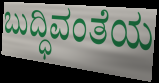
ಬುದ್ಧಿವಂತೆಯ